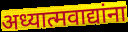
अध्यात्मवाद्यांना